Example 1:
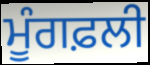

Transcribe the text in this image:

ਮੂੰਗਫ਼ਲੀ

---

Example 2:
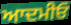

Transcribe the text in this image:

ਆਦਮੀਓ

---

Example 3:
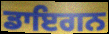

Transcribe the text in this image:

ਡਾਇਗਨ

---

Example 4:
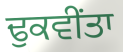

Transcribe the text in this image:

ਢੁਕਵੀਂਤਾ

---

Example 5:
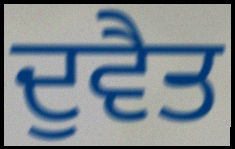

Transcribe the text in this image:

ਦੁਵੈਤ